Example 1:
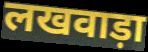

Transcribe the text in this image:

लखवाड़ा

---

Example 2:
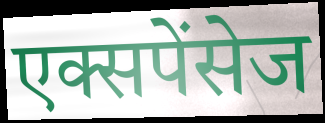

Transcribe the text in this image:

एक्सपेंसेज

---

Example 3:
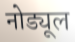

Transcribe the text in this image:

नोड्यूल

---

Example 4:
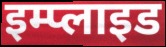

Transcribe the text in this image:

इम्प्लाइड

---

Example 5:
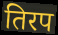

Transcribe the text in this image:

तिरप